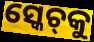
ସ୍କେଚ୍‌କୁ